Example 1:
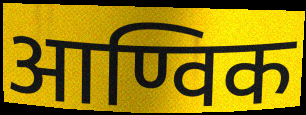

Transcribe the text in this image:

आण्विक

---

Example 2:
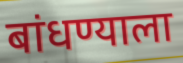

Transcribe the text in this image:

बांधण्याला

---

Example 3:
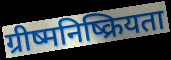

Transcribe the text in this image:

ग्रीष्मनिष्क्रियता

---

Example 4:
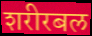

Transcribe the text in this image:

शरीरबल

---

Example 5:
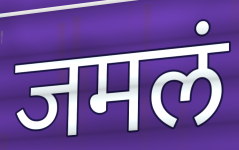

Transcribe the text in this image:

जमलं